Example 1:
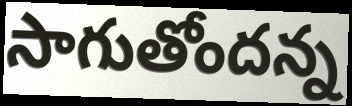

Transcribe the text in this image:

సాగుతోందన్న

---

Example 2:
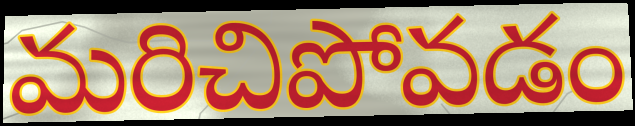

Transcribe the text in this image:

మరిచిపోవడం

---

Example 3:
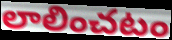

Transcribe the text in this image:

లాలించటం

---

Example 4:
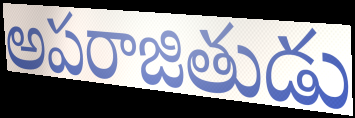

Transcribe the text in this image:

అపరాజితుడు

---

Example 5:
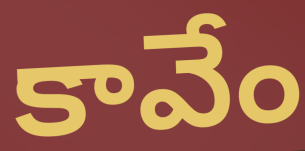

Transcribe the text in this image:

కావేం